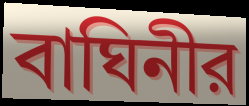
বাঘিনীর